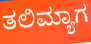
ತಲಿಮ್ಯಾಗ